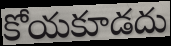
కోయకూడదు